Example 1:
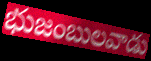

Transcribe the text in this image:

భుజంబులవాడు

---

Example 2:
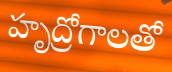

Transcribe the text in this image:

హృద్రోగాలతో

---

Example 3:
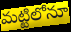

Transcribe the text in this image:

మట్టిలోనూ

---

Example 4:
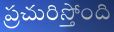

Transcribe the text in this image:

ప్రచురిస్తోంది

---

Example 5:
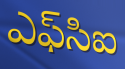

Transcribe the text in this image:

ఎఫ్‌సిఐ